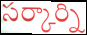
సర్కార్ని